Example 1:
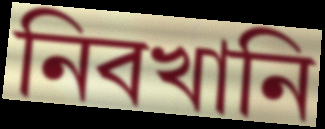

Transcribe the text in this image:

নিবখানি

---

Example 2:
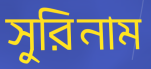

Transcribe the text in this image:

সুরিনাম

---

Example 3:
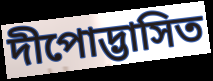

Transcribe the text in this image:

দীপোদ্ভাসিত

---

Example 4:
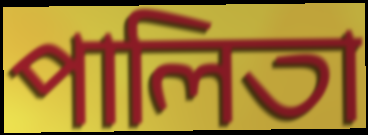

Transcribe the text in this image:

পালিতা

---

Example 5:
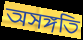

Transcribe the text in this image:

অসঙ্গতি